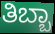
ತಿಬ್ಬಾ